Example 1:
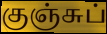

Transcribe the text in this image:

குஞ்சுப்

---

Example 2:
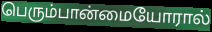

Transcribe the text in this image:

பெரும்பான்மையோரால்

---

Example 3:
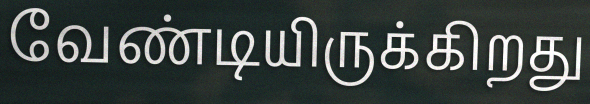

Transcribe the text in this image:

வேண்டியிருக்கிறது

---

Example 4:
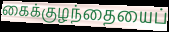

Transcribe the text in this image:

கைக்குழந்தையைப்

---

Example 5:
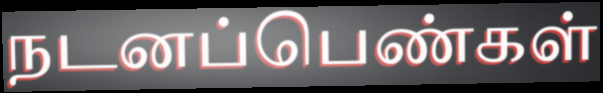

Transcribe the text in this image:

நடனப்பெண்கள்